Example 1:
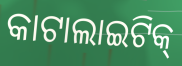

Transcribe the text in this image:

କାଟାଲାଇଟିକ୍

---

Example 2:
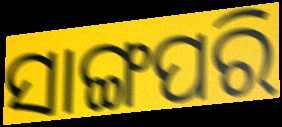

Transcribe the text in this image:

ସାଙ୍ଗପରି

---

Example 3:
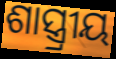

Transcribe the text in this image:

ଶାସ୍ତ୍ର୍ରୀୟ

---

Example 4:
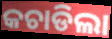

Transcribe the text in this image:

କଚାଡିଲା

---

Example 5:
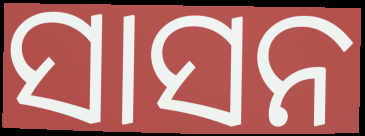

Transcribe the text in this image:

ସାସନ